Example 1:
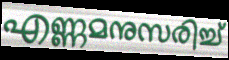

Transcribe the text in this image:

എണ്ണമനുസരിച്ച്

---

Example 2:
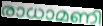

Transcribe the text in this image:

രാധാമണി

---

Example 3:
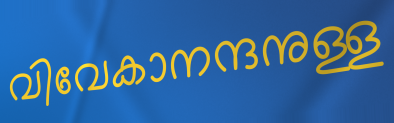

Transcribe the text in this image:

വിവേകാനന്ദനുള്ള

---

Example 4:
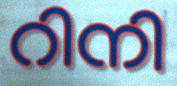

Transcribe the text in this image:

റിനി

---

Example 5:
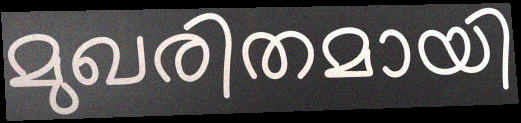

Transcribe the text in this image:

മുഖരിതമായി